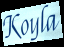
Koyla